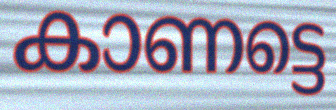
കാണട്ടെ